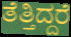
ತೆತ್ತಿದ್ದರೆ